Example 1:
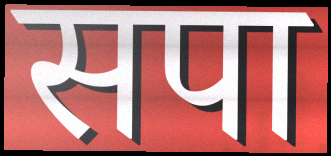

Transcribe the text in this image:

सपा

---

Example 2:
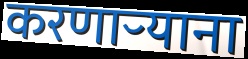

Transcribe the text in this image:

करणाऱ्याना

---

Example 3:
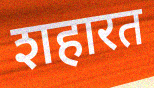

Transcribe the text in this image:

शहारत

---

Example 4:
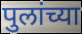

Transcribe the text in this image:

पुलांच्या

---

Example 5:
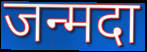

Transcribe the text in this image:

जन्मदा